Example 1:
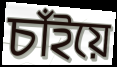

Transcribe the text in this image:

চাঁইয়ে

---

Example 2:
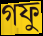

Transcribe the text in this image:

গফু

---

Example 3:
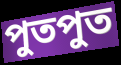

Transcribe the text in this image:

পুতপুত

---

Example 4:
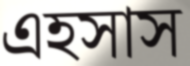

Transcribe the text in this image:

এহসাস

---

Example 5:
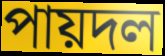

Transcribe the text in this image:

পায়দল